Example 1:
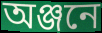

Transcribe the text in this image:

অঞ্জনে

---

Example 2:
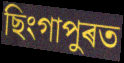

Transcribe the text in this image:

ছিংগাপুৰত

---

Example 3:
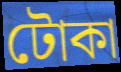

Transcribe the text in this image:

টোকা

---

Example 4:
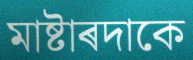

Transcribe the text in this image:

মাষ্টাৰদাকে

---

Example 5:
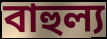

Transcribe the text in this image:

বাহুল্য